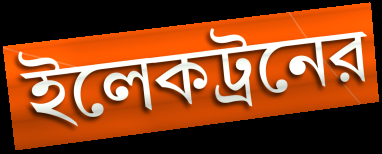
ইলেকট্রনের